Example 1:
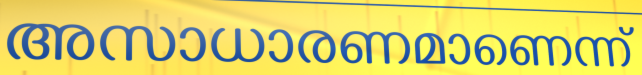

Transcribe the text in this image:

അസാധാരണമാണെന്ന്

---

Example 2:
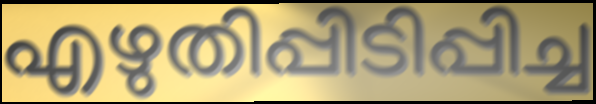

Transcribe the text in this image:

എഴുതിപ്പിടിപ്പിച്ച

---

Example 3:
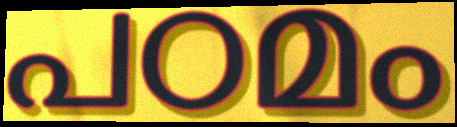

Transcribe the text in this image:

പഠമം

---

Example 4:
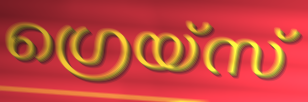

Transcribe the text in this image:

ഗ്രെയ്സ്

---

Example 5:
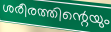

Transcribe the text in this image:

ശരീരത്തിന്റെയും